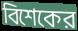
বিশেকের